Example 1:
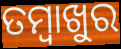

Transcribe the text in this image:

ତମ୍ବାଖୁର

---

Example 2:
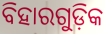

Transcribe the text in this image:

ବିହାରଗୁଡ଼ିକ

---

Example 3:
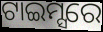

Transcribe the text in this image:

ଟାଇମ୍ସରେ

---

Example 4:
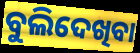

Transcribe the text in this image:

ବୁଲିଦେଖିବା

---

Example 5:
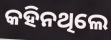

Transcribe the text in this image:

କହିନଥିଲେ